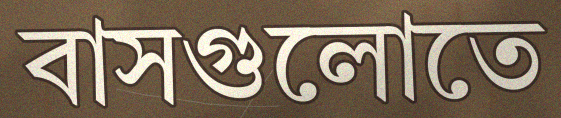
বাসগুলোতে